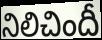
నిలిచిందీ